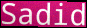
Sadid